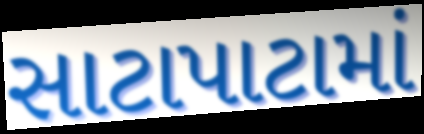
સાટાપાટામાં